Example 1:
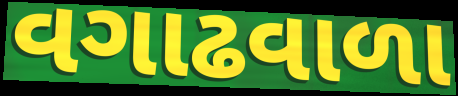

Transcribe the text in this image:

વગાઢવાળા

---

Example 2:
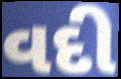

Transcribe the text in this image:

વદી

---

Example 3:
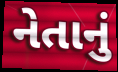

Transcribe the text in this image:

નેતાનું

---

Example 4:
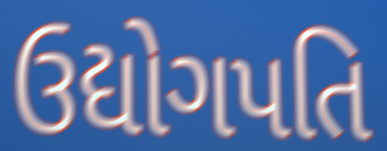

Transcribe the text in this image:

ઉદ્યોગપતિ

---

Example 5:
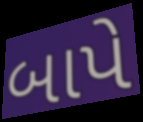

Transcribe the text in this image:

બાપે